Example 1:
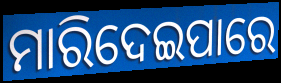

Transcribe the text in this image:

ମାରିଦେଇପାରେ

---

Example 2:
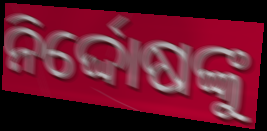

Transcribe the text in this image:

ନିର୍ଦ୍ଦୋଷଙ୍କୁ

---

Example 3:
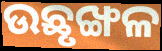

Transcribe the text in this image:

ଉଛୃଙ୍ଖଳ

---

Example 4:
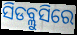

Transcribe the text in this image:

ସିଡବ୍ଲୁସିରେ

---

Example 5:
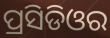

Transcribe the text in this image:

ପ୍ରସିଡିଓର